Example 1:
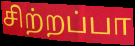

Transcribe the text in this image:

சிற்றப்பா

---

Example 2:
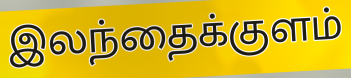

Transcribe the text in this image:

இலந்தைக்குளம்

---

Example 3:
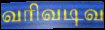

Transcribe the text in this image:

வரிவடிவ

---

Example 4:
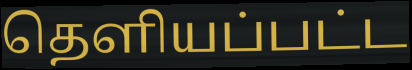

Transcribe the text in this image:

தெளியப்பட்ட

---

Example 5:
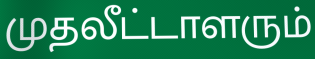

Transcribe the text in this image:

முதலீட்டாளரும்